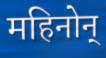
महिनोन्